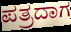
ಪತ್ರದಾಗ